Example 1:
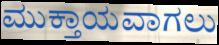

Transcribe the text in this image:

ಮುಕ್ತಾಯವಾಗಲು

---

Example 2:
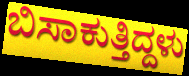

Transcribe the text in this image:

ಬಿಸಾಕುತ್ತಿದ್ದಳು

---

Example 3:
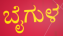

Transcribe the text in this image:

ಬೈಗುಳ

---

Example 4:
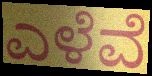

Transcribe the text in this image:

ಎಳೆವೆ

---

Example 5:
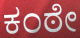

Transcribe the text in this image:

ಕಂಠೇ